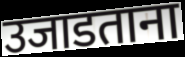
उजाडताना